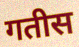
गतीस